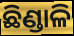
ଛିଣ୍ଡାଳି